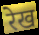
रेख